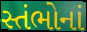
સ્તંભોનાં